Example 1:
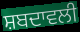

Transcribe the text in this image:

ਸ਼ਬਦਾਵਲੀ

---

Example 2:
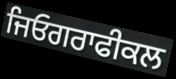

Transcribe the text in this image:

ਜਿਓਗਰਾਫੀਕਲ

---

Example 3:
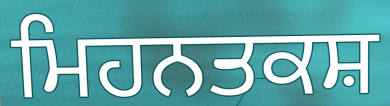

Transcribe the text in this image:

ਮਿਹਨਤਕਸ਼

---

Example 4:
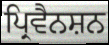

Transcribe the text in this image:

ਪ੍ਰਿਵੈਨਸ਼ਨ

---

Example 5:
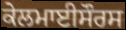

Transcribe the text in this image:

ਕੇਲਮਾਈਸੌਰਸ